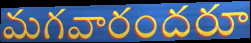
మగవారందరూ